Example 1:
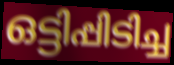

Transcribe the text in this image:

ഒട്ടിപ്പിടിച്ച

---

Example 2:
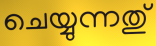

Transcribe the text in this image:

ചെയ്യുന്നതു്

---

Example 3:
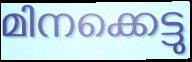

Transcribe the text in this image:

മിനക്കെട്ടു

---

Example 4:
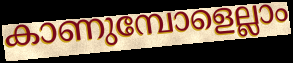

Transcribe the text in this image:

കാണുമ്പോളെല്ലാം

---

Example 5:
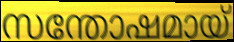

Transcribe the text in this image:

സന്തോഷമായ്